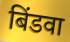
बिंडवा